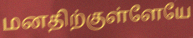
மனதிற்குள்ளேயே